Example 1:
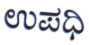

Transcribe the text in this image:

ಉಪಧಿ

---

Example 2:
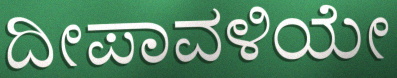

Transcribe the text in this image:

ದೀಪಾವಳಿಯೇ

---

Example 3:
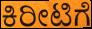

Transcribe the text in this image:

ಕಿರೀಟಿಗೆ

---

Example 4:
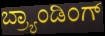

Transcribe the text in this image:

ಬ್ರ್ಯಾಂಡಿಂಗ್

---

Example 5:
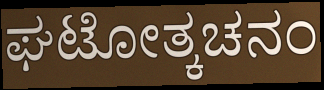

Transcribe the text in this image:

ಘಟೋತ್ಕಚನಂ